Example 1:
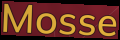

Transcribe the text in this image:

Mosse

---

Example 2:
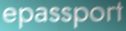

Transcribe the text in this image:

epassport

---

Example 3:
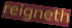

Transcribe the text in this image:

reigneth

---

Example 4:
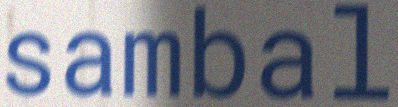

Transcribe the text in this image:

sambal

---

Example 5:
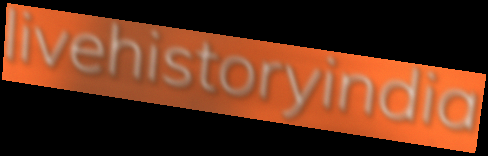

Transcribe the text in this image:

livehistoryindia